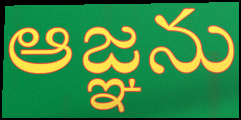
ఆజ్ఞను